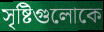
সৃষ্টিগুলোকে